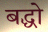
बद्धो